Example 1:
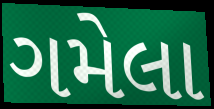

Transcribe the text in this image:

ગમેલા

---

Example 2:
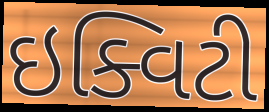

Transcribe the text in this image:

ઇક્વિટી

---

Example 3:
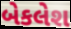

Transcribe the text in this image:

બેકલેશ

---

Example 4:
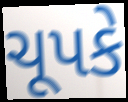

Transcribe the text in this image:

ચૂપકે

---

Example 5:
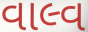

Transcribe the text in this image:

વાલ્વ